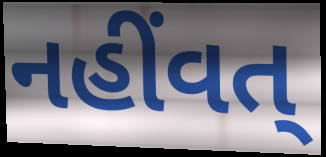
નહીંવત્